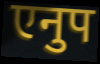
एनुप